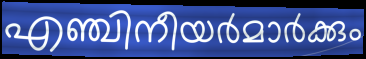
എഞ്ചിനീയർമാർക്കും